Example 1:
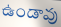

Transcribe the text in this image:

ఉండావు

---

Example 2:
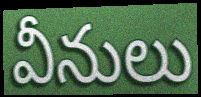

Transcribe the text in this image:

వీనులు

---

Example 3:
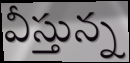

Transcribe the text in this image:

వీస్తున్న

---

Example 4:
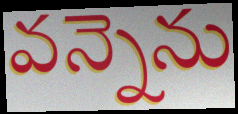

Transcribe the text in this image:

వన్నెను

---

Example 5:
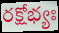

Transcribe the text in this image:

రక్షోభ్యః